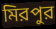
মিরপুর